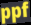
ppf